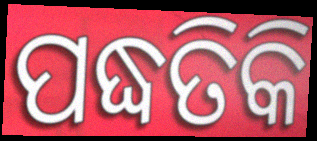
ପଦ୍ଧତିକି